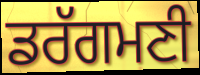
ਡਰੱਗਮਣੀ